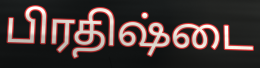
பிரதிஷ்டை